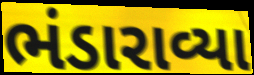
ભંડારાવ્યા